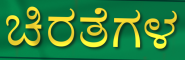
ಚಿರತೆಗಳ